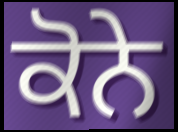
ਕੋਨੇ